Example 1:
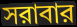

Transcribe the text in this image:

সরাবার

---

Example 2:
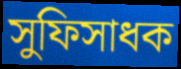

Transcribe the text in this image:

সুফিসাধক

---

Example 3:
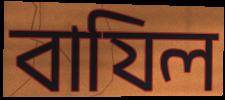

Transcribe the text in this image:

বাযিল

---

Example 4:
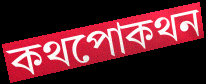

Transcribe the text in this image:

কথপোকথন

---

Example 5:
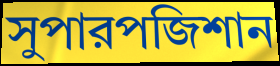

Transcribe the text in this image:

সুপারপজিশান